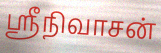
ஸ்ரீநிவாசன்